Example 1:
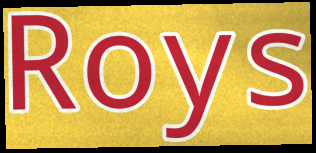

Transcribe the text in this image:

Roys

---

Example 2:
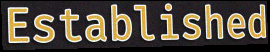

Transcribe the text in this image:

Established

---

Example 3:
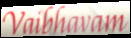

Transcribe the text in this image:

Vaibhavam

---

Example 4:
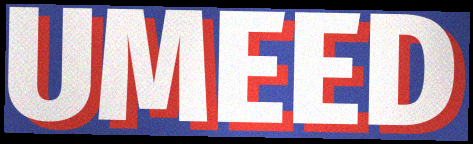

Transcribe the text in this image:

UMEED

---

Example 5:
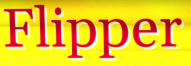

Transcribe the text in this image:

Flipper